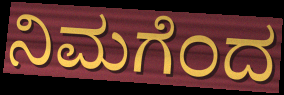
ನಿಮಗೆಂದ